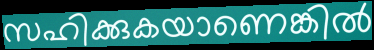
സഹിക്കുകയാണെങ്കിൽ